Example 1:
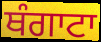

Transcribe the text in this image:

ਥੰਗਾਟਾ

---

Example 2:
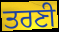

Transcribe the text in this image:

ਤਰਣੀ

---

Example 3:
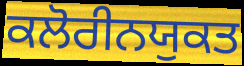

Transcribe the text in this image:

ਕਲੋਰੀਨਯੁਕਤ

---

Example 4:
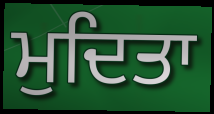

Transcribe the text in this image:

ਮੁਦਿਤਾ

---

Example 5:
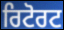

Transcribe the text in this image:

ਰਿਟੋਰਟ